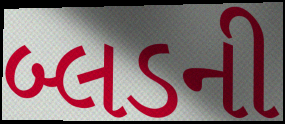
બ્લડની